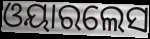
ଓୟାରଲେସ